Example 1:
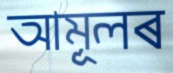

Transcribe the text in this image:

আমূলৰ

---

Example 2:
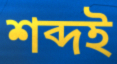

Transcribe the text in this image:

শব্দই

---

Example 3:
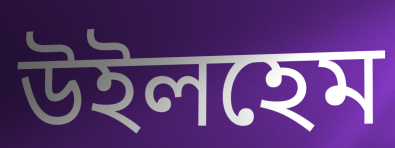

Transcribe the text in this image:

উইলহেম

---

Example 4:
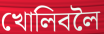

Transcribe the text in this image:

খোলিবলৈ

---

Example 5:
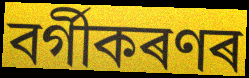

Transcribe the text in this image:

বৰ্গীকৰণৰ